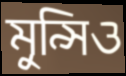
মুন্সিও